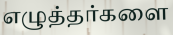
எழுத்தர்களை